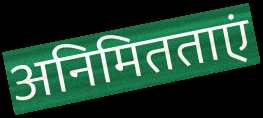
अनिमितताएं